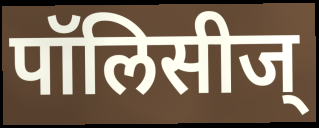
पॉलिसीज्